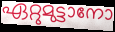
ഏറ്റുമുട്ടാനോ